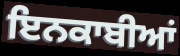
ਇਨਕਾਬੀਆਂ